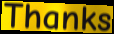
Thanks